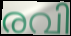
രവി